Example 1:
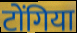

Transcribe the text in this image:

टोंगिया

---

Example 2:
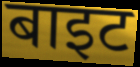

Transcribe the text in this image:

बाइट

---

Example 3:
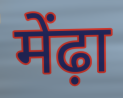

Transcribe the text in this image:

मेंढ़ा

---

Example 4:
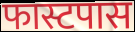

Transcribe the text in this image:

फास्टपास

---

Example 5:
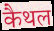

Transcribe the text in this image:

कैथल